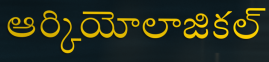
ఆర్కియోలాజికల్